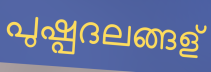
പുഷ്പദലങ്ങള്